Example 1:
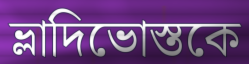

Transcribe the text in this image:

ভ্লাদিভোস্তকে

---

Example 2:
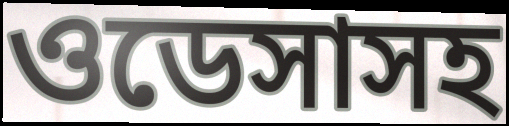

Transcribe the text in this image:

ওডেসাসহ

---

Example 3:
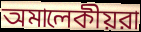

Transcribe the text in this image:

অমালেকীয়রা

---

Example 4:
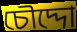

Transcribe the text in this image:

চৌদ্দো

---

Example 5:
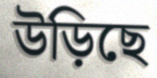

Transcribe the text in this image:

উড়িছে